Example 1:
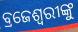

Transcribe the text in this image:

ବ୍ରଜେଶ୍ୱରୀଙ୍କୁ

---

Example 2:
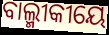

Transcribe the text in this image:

ବାଲ୍ମୀକୀୟେ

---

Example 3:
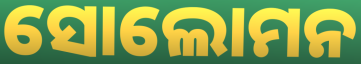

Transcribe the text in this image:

ସୋଲୋମନ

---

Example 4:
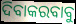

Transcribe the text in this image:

ଦିବାକରବାବୁ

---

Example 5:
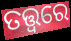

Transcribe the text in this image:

ତତ୍ତ୍ୱରେ